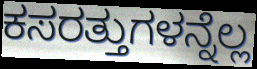
ಕಸರತ್ತುಗಳನ್ನೆಲ್ಲ